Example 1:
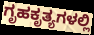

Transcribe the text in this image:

ಗೃಹಕೃತ್ಯಗಳಲ್ಲಿ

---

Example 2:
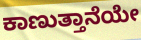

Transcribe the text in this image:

ಕಾಣುತ್ತಾನೆಯೇ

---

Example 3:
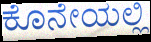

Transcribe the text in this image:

ಕೊನೇಯಲ್ಲಿ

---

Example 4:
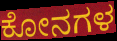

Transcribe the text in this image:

ಕೋನಗಳ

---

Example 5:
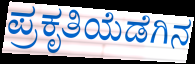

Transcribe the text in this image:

ಪ್ರಕೃತಿಯೆಡೆಗಿನ